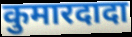
कुमारदादा